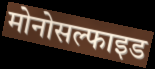
मोनोसल्फाइड